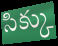
సిక్కు